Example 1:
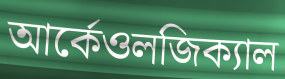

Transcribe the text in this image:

আর্কেওলজিক্যাল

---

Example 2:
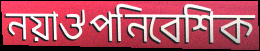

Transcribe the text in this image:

নয়াঔপনিবেশিক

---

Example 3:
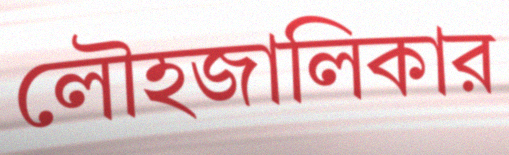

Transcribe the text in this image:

লৌহজালিকার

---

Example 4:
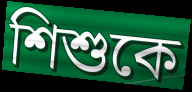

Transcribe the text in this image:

শিশুকে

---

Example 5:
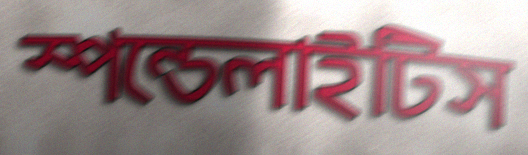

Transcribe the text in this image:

স্পন্ডেলাইটিস